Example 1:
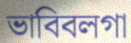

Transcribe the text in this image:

ভাবিবলগা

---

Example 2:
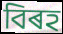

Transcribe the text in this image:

বিৰহ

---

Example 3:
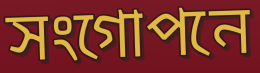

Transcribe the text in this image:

সংগোপনে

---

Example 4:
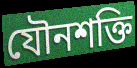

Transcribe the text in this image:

যৌনশক্তি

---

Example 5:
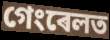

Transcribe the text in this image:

গেংৰেলত